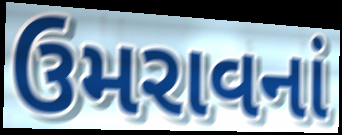
ઉમરાવનાં